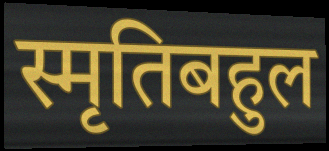
स्मृतिबहुल